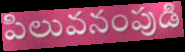
పిలువనంపుడి